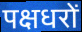
पक्षधरों